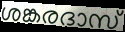
ശങ്കരദാസ്